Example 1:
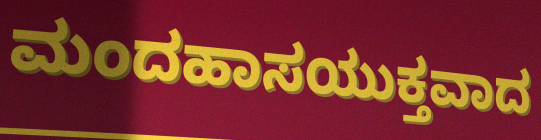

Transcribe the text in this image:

ಮಂದಹಾಸಯುಕ್ತವಾದ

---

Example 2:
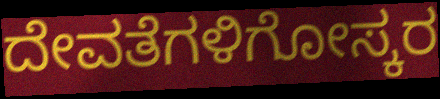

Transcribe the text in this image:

ದೇವತೆಗಳಿಗೋಸ್ಕರ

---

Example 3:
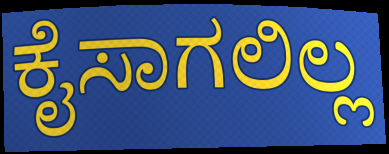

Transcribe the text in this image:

ಕೈಸಾಗಲಿಲ್ಲ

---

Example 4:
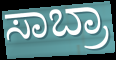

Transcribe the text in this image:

ಸಾಬ್ರಾ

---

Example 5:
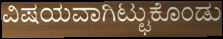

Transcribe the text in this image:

ವಿಷಯವಾಗಿಟ್ಟುಕೊಂಡು